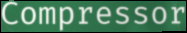
Compressor